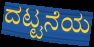
ದಟ್ಟನೆಯ